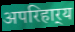
अपरिहार्य